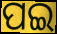
ପଇ